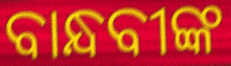
ବାନ୍ଧବୀଙ୍କ